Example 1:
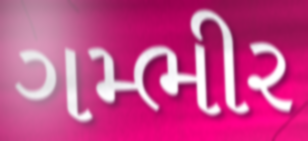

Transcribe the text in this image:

ગમ્ભીર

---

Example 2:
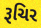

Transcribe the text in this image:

રૂચિર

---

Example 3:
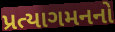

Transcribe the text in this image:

પ્રત્યાગમનનો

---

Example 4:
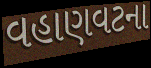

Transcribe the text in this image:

વહાણવટના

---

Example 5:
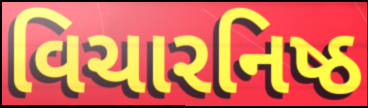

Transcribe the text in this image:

વિચારનિષ્ઠ